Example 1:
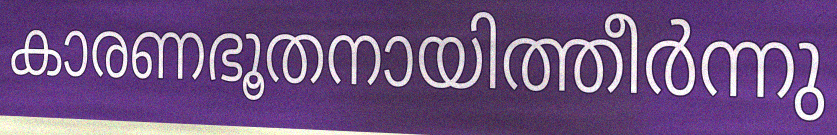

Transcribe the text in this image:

കാരണഭൂതനായിത്തീർന്നു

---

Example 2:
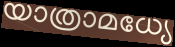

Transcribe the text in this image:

യാത്രാമധ്യേ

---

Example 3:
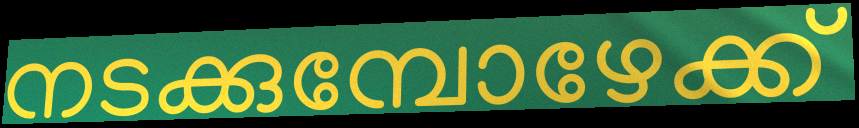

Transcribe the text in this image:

നടക്കുമ്പോഴേക്ക്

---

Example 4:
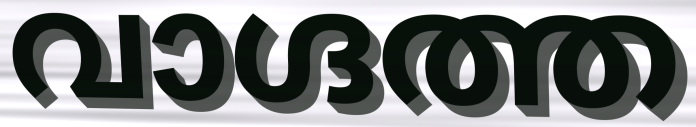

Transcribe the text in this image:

വാഗ്ദത്ത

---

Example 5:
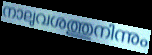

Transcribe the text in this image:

നാലുവശത്തുനിന്നും